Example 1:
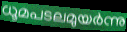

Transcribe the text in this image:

ധൂമപടലമുയർന്നു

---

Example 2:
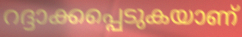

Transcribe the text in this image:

റദ്ദാക്കപ്പെടുകയാണ്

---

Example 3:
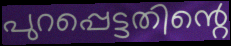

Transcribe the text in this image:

പുറപ്പെട്ടതിന്റെ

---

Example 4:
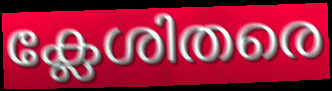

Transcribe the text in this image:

ക്ലേശിതരെ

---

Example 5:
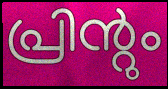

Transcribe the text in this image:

പ്രിന്റും